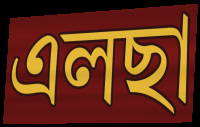
এলছা